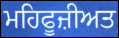
ਮਹਿਫੂਜ਼ੀਅਤ